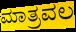
ಮಾತ್ರವಲ